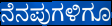
ನೆನಪುಗಳಿಗೂ